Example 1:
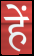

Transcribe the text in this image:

हें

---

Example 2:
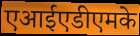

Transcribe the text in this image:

एआईएडीएमके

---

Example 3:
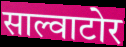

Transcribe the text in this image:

साल्वाटोर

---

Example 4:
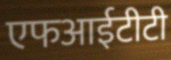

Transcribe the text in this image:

एफआईटीटी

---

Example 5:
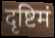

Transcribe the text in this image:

दृष्टिमं